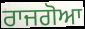
ਰਾਜਗੋਆ